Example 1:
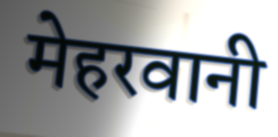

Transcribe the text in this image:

मेहरवानी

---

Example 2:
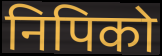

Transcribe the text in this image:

निपिको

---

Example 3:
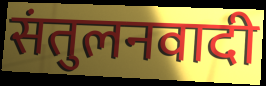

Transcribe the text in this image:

संतुलनवादी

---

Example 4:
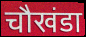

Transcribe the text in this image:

चौखंडा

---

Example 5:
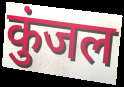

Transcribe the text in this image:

कुंजल